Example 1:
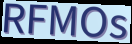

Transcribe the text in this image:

RFMOs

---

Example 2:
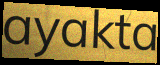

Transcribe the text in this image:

ayakta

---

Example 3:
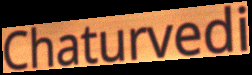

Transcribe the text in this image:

Chaturvedi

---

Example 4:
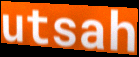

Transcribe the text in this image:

utsah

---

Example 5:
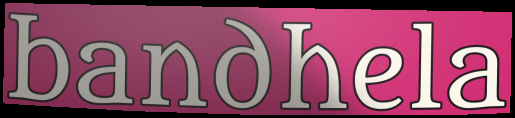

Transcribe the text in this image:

bandhela